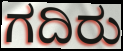
ಗದಿರು